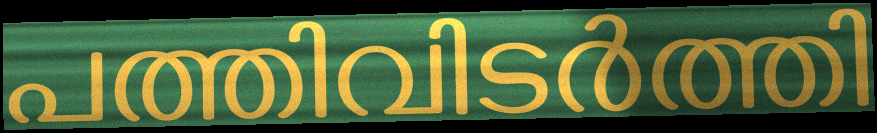
പത്തിവിടർത്തി